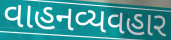
વાહનવ્યવહાર